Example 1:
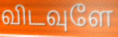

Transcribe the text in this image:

விடவுளே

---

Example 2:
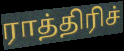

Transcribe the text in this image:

ராத்திரிச்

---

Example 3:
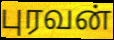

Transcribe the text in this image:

புரவன்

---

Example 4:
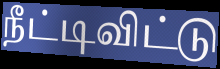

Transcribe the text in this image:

நீட்டிவிட்டு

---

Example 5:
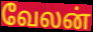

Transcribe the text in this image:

வேலன்